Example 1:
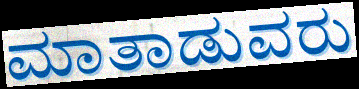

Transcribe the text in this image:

ಮಾತಾಡುವರು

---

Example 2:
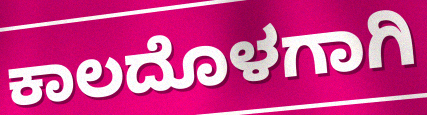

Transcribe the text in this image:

ಕಾಲದೊಳಗಾಗಿ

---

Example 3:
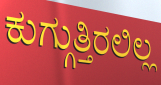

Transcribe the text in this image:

ಕುಗ್ಗುತ್ತಿರಲಿಲ್ಲ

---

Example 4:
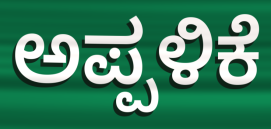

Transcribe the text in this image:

ಅಪ್ಪಳಿಕೆ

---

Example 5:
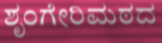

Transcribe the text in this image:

ಶೃಂಗೇರಿಮಠದ